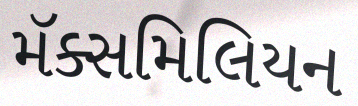
મૅક્સમિલિયન